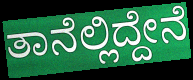
ತಾನೆಲ್ಲಿದ್ದೇನೆ